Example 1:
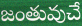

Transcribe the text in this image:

జంతువుచే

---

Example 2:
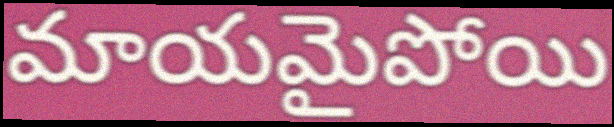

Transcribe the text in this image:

మాయమైపోయి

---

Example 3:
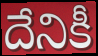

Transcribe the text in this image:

దేనికీ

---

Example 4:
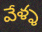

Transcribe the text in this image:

వేళ్ళ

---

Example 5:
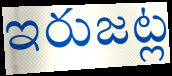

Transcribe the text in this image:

ఇరుజట్ల